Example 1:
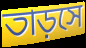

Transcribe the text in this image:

তাড়সে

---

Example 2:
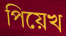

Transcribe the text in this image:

পিয়েখ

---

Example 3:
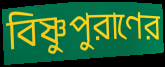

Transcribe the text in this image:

বিষ্ণুপুরাণের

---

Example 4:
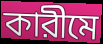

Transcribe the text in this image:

কারীমে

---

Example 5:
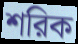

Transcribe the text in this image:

শরিক